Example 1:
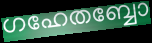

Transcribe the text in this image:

ഗഹേതബ്ബോ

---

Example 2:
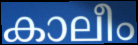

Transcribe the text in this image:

കാലീം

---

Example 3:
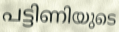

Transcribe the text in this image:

പട്ടിണിയുടെ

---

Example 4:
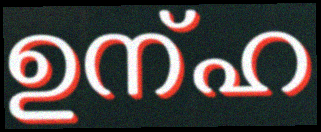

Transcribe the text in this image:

ഉന്ഹ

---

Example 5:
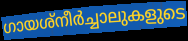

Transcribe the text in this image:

ഗായശ്നീർച്ചാലുകളുടെ